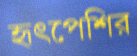
হৃৎপেশির